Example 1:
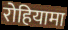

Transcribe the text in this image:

रोहियामा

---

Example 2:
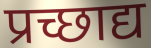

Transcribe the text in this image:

प्रच्छाद्य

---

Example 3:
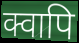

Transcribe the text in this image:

क्वापि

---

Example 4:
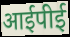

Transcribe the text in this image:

आईपीई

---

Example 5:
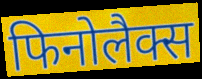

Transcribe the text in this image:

फिनोलैक्स